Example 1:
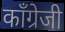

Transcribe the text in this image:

काँग्रेजी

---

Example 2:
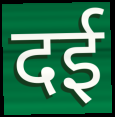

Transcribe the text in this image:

दई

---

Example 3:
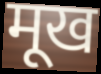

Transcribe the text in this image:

मूख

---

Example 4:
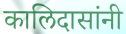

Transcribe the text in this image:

कालिदासांनी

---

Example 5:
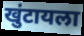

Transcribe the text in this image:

खुंटायला